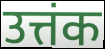
उत्तंक